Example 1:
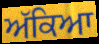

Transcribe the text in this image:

ਅੱਕਿਆ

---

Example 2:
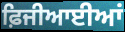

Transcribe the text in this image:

ਫ਼ਿਜੀਆਈਆਂ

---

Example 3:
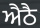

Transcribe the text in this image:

ਐਠੈ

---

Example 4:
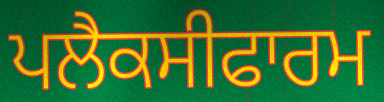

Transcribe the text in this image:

ਪਲੈਕਸੀਫਾਰਮ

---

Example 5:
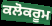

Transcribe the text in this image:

ਕਲੋਕਰੂਮ